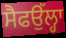
ਸੈਫਉੱਲ੍ਹਾ